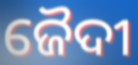
ଜୈଦୀ